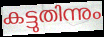
കട്ടുതിന്നും